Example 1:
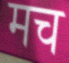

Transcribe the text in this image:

मच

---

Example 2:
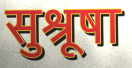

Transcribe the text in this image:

सुश्रूषा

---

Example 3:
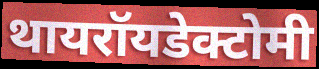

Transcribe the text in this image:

थायरॉयडेक्टोमी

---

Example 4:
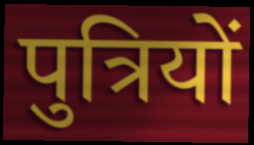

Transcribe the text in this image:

पुत्रियों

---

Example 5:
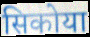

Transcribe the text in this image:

सिकोया